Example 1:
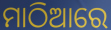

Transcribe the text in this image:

ମାଠିଆରେ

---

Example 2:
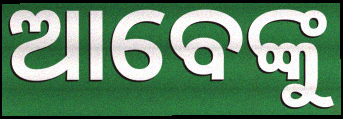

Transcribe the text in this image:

ଆବେଙ୍କୁ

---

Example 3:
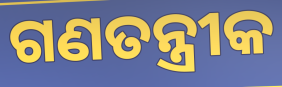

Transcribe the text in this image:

ଗଣତନ୍ତ୍ରୀକ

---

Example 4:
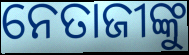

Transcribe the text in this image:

ନେତାଜୀଙ୍କୁ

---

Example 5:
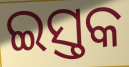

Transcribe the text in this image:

ଇସ୍ତକ